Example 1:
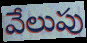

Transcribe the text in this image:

వేలుపు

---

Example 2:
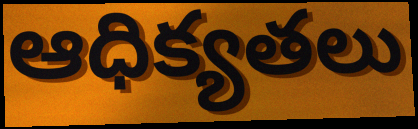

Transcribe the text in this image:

ఆధిక్యతలు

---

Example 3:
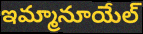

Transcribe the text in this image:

ఇమ్మానూయేల్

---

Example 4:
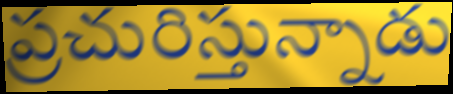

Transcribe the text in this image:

ప్రచురిస్తున్నాడు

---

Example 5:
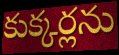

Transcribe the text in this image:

కుక్కర్లను